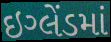
ઇગ્લેંડમાં